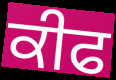
ਕੀਫ